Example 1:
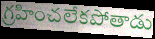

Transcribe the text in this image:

గ్రహించలేకపోతాడు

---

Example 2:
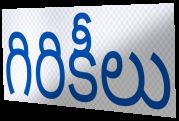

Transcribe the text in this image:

గిరికీలు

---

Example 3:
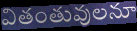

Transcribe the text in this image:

వితంతువులనూ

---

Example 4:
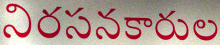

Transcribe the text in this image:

నిరసనకారుల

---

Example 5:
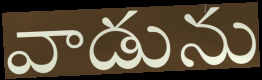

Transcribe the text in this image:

వాడును